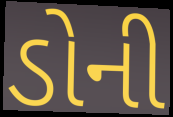
ડોની